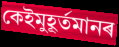
কেইমুহূৰ্তমানৰ